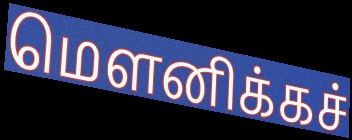
மௌனிக்கச்